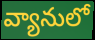
వ్యానులో